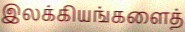
இலக்கியங்களைத்